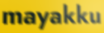
mayakku